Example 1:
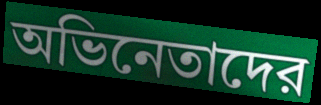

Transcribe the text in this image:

অভিনেতাদের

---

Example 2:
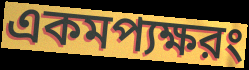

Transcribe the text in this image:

একমপ্যক্ষরং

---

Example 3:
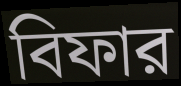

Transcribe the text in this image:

বিফার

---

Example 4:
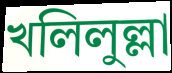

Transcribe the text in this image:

খলিলুল্লা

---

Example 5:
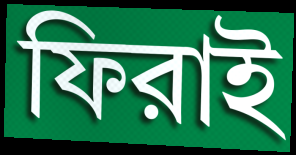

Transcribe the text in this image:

ফিরাই